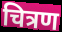
चित्रण